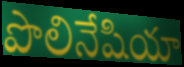
పొలినేషియా